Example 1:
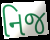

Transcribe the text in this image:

નિજ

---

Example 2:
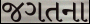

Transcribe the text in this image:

જગતના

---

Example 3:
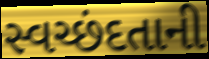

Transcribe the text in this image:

સ્વચ્છંદતાની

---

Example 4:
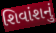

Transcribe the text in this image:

શિવાંશનું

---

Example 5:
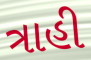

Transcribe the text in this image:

ત્રાહી